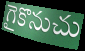
గైకొనుచు